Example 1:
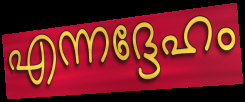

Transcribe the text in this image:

എന്നദ്ദേഹം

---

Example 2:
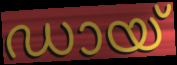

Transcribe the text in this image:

ഡായ്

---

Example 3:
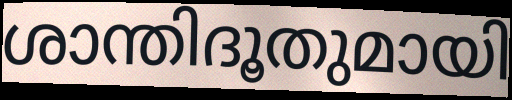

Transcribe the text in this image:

ശാന്തിദൂതുമായി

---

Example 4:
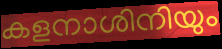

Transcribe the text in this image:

കളനാശിനിയും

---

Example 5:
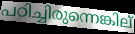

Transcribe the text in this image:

പഠിച്ചിരുന്നെങ്കില്